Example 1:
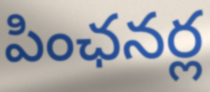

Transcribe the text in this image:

పింఛనర్ల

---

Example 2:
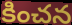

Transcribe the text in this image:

కించన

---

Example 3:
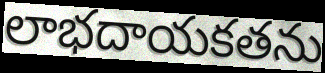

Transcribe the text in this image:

లాభదాయకతను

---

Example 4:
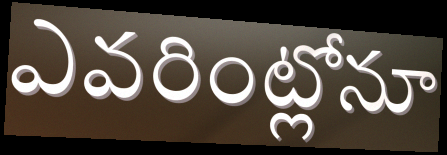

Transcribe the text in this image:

ఎవరింట్లోనూ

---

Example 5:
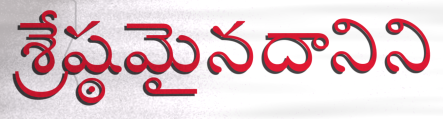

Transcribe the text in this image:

శ్రేష్ఠమైనదానిని